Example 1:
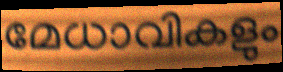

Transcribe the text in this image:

മേധാവികളും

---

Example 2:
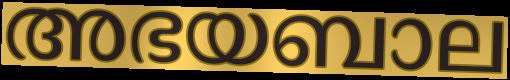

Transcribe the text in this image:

അഭയബാല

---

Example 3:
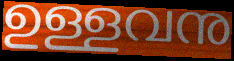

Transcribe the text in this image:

ഉള്ളവനു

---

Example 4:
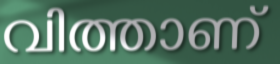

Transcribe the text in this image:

വിത്താണ്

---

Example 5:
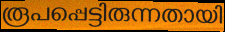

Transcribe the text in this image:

രൂപപ്പെട്ടിരുന്നതായി